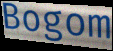
Bogom